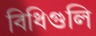
বিধিগুলি